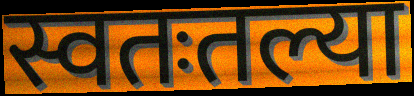
स्वतःतल्या